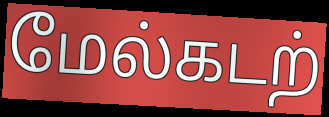
மேல்கடற்